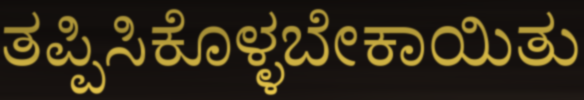
ತಪ್ಪಿಸಿಕೊಳ್ಳಬೇಕಾಯಿತು